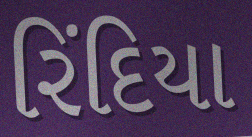
રિંદિયા